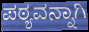
ಪಠ್ಯವನ್ನಾಗಿ